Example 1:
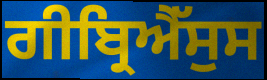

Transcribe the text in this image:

ਗੀਬ੍ਰਿਐੱਸੁਸ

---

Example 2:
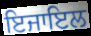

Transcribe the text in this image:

ਇਜਾਇਲ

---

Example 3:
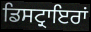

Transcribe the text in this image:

ਡਿਸਟ੍ਰਾਇਰਾਂ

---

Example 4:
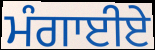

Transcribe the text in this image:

ਮੰਗਾਈਏ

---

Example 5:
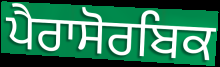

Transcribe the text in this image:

ਪੈਰਾਸੋਰਬਿਕ